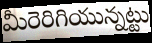
మీరెరిగియున్నట్టు